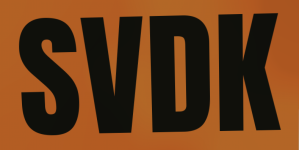
SVDK